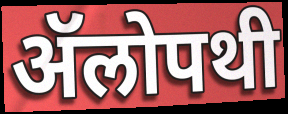
ॲॅलोपथी